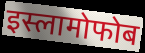
इस्लामोफोब